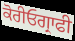
ਕੋਰੀਓਗ੍ਰਾਫੀ